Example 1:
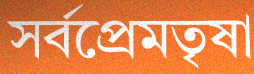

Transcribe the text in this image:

সর্বপ্রেমতৃষা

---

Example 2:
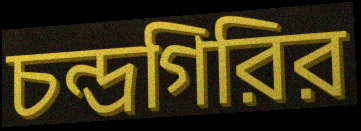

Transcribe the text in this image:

চন্দ্রগিরির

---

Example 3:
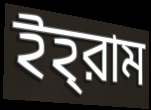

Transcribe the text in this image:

ইহ্‌রাম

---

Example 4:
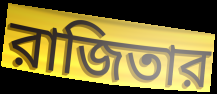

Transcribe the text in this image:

রাজিতার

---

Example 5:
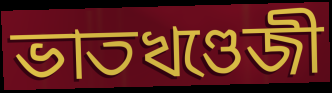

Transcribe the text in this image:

ভাতখণ্ডেজী